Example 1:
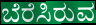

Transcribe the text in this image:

ಬೆರೆಸಿರುವ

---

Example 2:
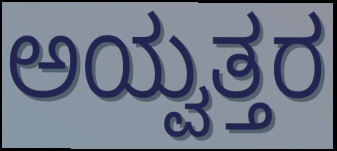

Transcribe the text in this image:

ಅಯ್ವತ್ತರ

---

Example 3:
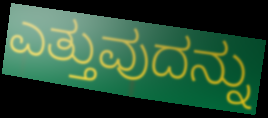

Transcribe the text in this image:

ಎತ್ತುವುದನ್ನು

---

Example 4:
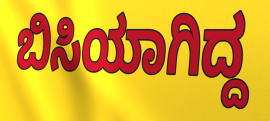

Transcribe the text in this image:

ಬಿಸಿಯಾಗಿದ್ದ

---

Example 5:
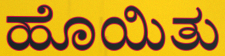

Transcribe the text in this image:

ಹೊಯಿತು